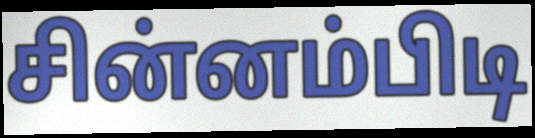
சின்னம்பிடி